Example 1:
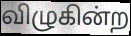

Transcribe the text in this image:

விழுகின்ற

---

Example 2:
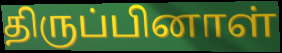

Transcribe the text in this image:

திருப்பினாள்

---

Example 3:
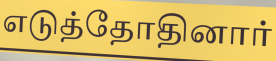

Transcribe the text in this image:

எடுத்தோதினார்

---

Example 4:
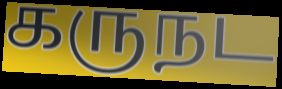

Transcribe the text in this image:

கருநட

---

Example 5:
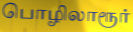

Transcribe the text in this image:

பொழிலாரூர்